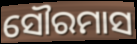
ସୌରମାସ